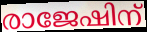
രാജേഷിന്